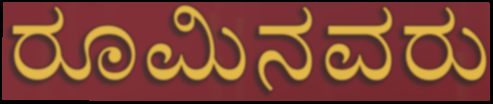
ರೂಮಿನವರು